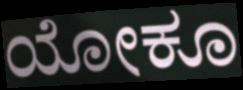
ಯೋಕೂ